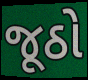
જૂઠો